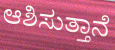
ಆಶಿಸುತ್ತಾನೆ